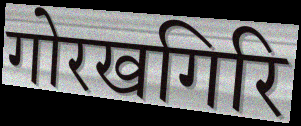
गोरखगिरि